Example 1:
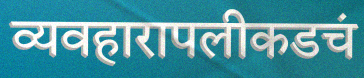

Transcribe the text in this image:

व्यवहारापलीकडचं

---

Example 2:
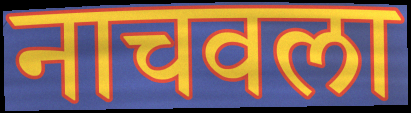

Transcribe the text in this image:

नाचवला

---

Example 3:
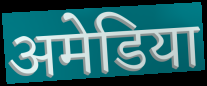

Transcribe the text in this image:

अमेडिया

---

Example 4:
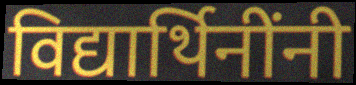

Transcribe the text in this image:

विद्यार्थिनींनी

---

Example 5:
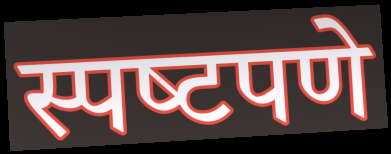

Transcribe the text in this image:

स्‍पष्‍टपणे